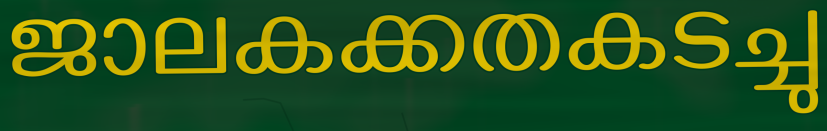
ജാലകക്കതകടച്ചു